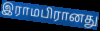
இராமபிரானது